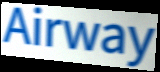
Airway